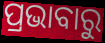
ପ୍ରଭାବାରୁ